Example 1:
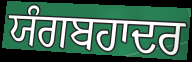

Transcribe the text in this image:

ਯੰਗਬਹਾਦਰ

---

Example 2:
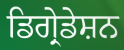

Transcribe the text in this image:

ਡਿਗ੍ਰੇਡੇਸ਼ਨ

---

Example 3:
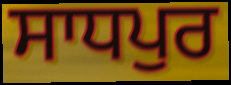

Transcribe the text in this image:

ਸਾਧਪੁਰ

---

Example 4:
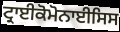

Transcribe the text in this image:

ਟ੍ਰਾਈਕੋਮੋਨਾਈਸਿਸ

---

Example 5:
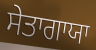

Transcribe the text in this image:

ਸੇਤਾਗਾਯਾ